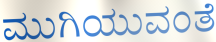
ಮುಗಿಯುವಂತೆ